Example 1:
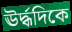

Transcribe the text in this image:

ঊর্দ্ধদিকে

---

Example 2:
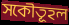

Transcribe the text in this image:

সকৌতূহল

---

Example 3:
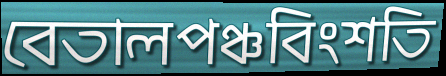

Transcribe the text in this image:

বেতালপঞ্চবিংশতি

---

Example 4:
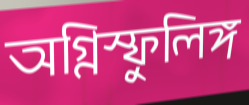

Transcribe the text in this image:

অগ্নিস্ফুলিঙ্গ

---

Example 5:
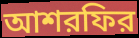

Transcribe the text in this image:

আশরফির